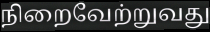
நிறைவேற்றுவது